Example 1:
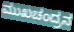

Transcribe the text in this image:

ಮುಖಚಂದ್ರನ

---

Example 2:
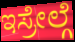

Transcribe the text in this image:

ಇಸ್ರೇಲ್ಗೆ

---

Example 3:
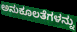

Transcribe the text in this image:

ಅನುಕೂಲತೆಗಳನ್ನು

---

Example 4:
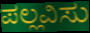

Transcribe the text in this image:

ಪಲ್ಲವಿಸು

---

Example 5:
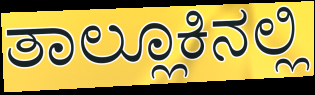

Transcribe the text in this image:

ತಾಲ್ಲೂಕಿನಲ್ಲಿ